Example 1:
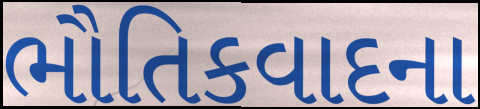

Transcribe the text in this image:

ભૌતિકવાદના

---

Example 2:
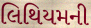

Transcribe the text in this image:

લિથિયમની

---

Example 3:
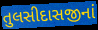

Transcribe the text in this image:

તુલસીદાસજીનાં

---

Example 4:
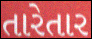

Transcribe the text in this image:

તારેતાર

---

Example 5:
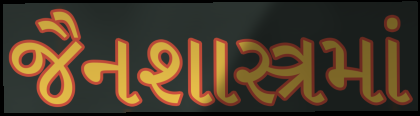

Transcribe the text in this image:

જૈનશાસ્ત્રમાં